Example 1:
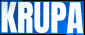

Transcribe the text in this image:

KRUPA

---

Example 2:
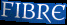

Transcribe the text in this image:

FIBRE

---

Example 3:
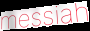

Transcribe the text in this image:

messiah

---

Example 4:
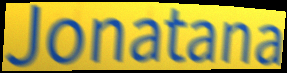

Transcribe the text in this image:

Jonatana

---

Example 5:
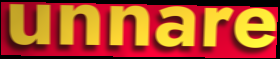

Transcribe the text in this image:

unnare